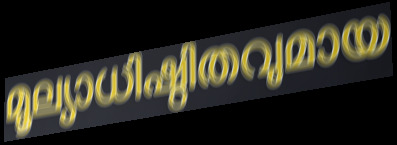
മൂല്യാധിഷ്ഠിതവുമായ